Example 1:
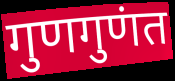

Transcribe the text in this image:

गुणगुणंत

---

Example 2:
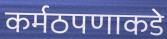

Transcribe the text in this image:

कर्मठपणाकडे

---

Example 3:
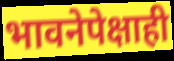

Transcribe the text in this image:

भावनेपेक्षाही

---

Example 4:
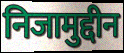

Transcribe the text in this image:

निजामुद्दीन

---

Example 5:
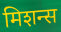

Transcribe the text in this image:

मिशन्स